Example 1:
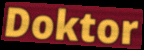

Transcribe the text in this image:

Doktor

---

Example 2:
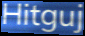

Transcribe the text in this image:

Hitguj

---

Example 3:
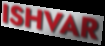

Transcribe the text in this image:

ISHVAR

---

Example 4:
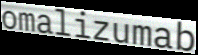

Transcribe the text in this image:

omalizumab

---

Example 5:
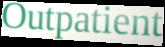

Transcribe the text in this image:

Outpatient